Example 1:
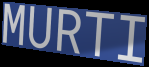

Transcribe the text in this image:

MURTI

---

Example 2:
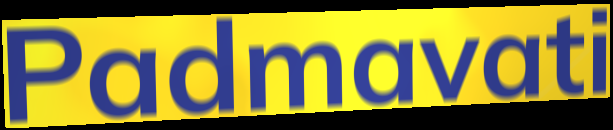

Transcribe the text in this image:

Padmavati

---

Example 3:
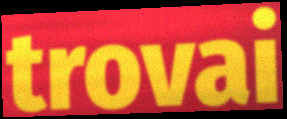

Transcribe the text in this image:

trovai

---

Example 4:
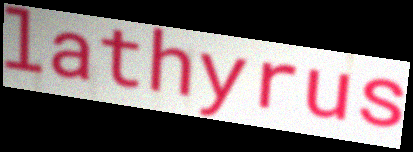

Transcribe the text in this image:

lathyrus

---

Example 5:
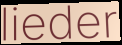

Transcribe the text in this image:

lieder